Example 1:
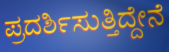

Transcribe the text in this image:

ಪ್ರದರ್ಶಿಸುತ್ತಿದ್ದೇನೆ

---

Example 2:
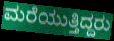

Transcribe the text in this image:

ಮರೆಯುತ್ತಿದ್ದರು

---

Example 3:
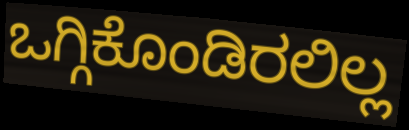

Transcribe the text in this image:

ಒಗ್ಗಿಕೊಂಡಿರಲಿಲ್ಲ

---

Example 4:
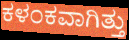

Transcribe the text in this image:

ಕಳಂಕವಾಗಿತ್ತು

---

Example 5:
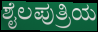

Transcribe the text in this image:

ಶೈಲಪುತ್ರಿಯ